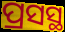
ପ୍ରସସ୍ଥ